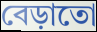
বেড়াতো